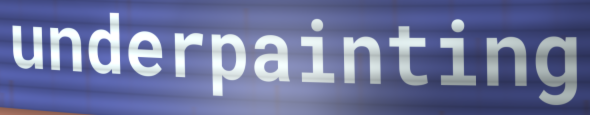
underpainting